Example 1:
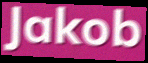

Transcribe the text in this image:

Jakob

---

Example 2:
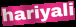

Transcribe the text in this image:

hariyali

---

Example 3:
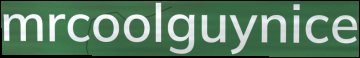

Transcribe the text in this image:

mrcoolguynice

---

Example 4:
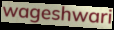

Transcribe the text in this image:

wageshwari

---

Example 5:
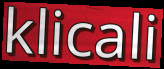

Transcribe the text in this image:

klicali